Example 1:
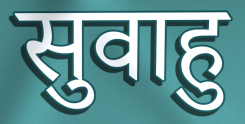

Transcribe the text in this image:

सुवाहु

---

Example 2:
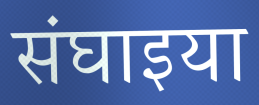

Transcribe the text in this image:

संघाइया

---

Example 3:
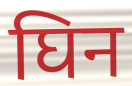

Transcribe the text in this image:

घिन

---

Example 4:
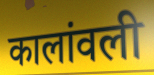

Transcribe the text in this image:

कालांवली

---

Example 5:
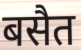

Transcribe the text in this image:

बसैत